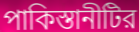
পাকিস্তানীটির